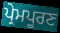
ਪ੍ਰੇਮਪੂਰਣ